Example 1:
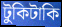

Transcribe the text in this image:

টুকিটাকি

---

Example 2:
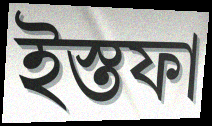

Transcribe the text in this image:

ইস্তফা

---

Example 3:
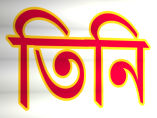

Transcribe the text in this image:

তিনি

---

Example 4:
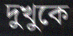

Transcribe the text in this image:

দুখুকে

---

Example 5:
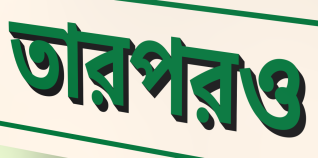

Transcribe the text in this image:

তারপরও